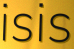
isis